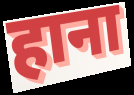
हाना